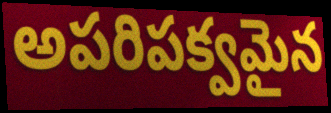
అపరిపక్వమైన